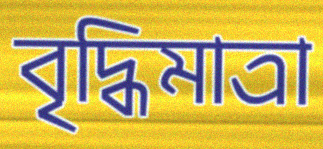
বৃদ্ধিমাত্রা